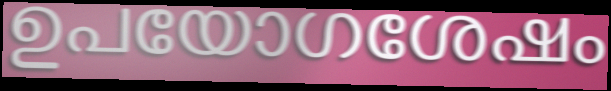
ഉപയോഗശേഷം